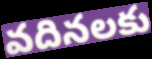
వదినలకు